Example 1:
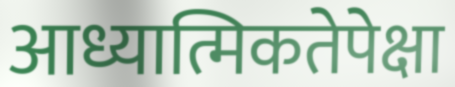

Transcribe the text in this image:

आध्यात्मिकतेपेक्षा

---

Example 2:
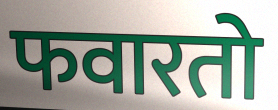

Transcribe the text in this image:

फवारतो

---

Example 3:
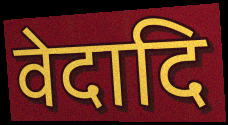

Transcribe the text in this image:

वेदादि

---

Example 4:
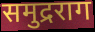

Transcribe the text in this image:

समुद्रराग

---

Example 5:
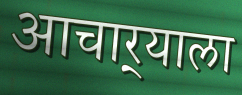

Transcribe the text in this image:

आचार्याला